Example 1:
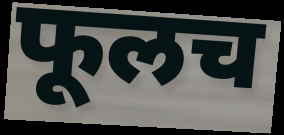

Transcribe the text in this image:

फूलच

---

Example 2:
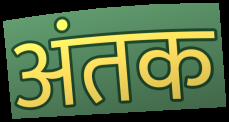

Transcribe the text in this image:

अंतक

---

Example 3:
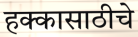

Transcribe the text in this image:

हक्कासाठीचे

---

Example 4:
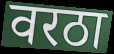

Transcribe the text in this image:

वरठा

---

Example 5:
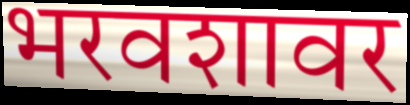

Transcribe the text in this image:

भरवशावर